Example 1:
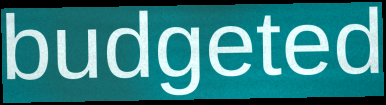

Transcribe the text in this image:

budgeted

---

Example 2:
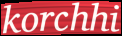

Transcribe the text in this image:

korchhi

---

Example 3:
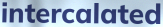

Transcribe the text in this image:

intercalated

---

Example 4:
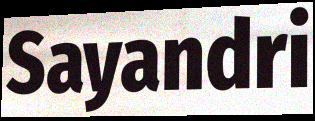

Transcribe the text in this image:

Sayandri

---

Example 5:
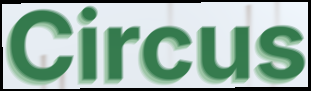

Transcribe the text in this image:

Circus